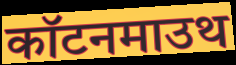
कॉटनमाउथ